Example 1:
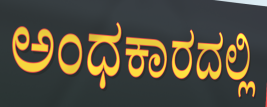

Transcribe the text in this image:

ಅಂಧಕಾರದಲ್ಲಿ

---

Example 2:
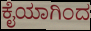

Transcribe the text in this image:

ಕೈಯಾಗಿಂದ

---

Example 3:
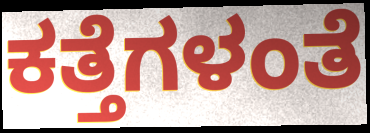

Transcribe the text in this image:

ಕತ್ತೆಗಳಂತೆ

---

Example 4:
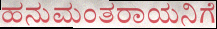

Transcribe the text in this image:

ಹನುಮಂತರಾಯನಿಗೆ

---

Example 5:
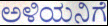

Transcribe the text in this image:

ಅಳಿಯನಿಗೆ